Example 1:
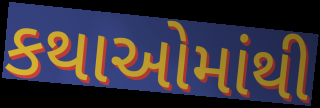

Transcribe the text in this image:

કથાઓમાંથી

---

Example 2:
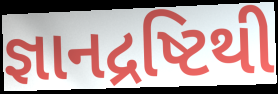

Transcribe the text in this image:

જ્ઞાનદ્રષ્ટિથી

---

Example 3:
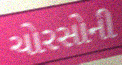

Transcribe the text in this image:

ચોરસોની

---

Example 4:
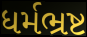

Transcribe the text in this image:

ધર્મભ્રષ્ટ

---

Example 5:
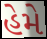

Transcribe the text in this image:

હેમે